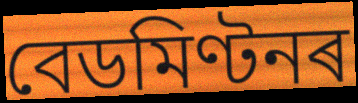
বেডমিণ্টনৰ